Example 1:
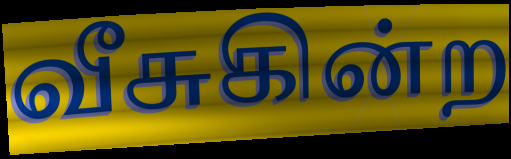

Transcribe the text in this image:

வீசுகின்ற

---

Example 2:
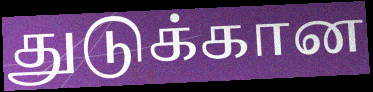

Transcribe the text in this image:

துடுக்கான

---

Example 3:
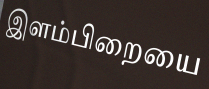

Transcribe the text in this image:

இளம்பிறையை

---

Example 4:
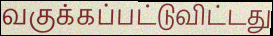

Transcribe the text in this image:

வகுக்கப்பட்டுவிட்டது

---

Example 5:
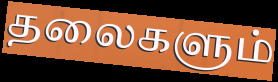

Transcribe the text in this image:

தலைகளும்